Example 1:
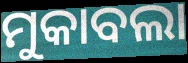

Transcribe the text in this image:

ମୁକାବଲା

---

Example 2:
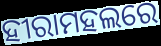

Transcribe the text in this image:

ହୀରାମହଲରେ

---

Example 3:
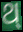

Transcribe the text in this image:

ଥ୍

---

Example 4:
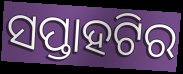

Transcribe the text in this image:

ସପ୍ତାହଟିର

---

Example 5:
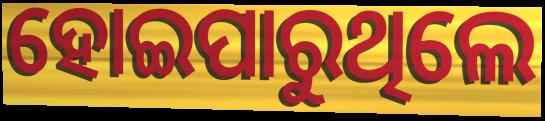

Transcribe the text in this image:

ହୋଇପାରୁଥିଲେ